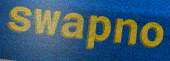
swapno